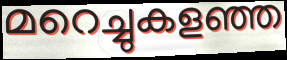
മറെച്ചുകളഞ്ഞ